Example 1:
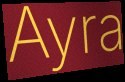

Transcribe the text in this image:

Ayra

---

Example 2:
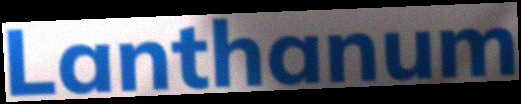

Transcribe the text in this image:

Lanthanum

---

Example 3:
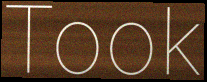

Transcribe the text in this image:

Took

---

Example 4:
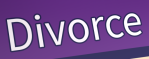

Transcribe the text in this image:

Divorce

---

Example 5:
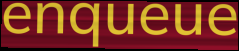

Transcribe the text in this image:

enqueue